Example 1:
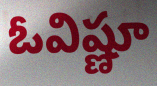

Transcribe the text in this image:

ఓవిష్ణూ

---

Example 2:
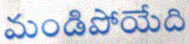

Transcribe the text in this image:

మండిపోయేది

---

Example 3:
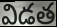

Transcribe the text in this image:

విడత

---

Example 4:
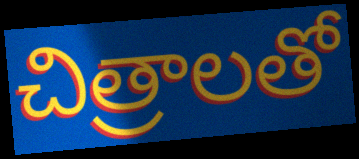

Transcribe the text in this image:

చిత్రాలతో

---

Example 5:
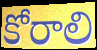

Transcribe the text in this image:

కోరాలి